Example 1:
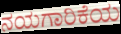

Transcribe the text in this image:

ನಯಗಾರಿಕೆಯ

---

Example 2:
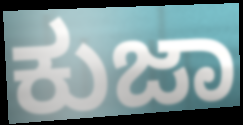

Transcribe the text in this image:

ಕುಜಾ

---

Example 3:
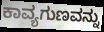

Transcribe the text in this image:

ಕಾವ್ಯಗುಣವನ್ನು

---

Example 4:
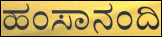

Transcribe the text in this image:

ಹಂಸಾನಂದಿ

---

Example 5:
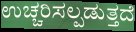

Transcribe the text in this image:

ಉಚ್ಚರಿಸಲ್ಪಡುತ್ತದೆ